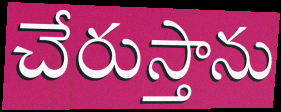
చేరుస్తాను